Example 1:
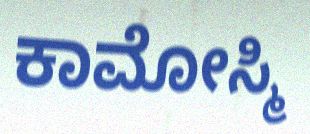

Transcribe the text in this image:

ಕಾಮೋಸ್ಮಿ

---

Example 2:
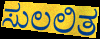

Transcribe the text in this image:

ಸುಲಲಿತ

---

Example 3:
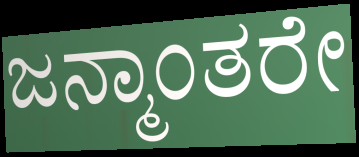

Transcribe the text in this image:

ಜನ್ಮಾಂತರೇ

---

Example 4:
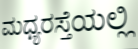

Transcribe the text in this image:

ಮಧ್ಯರಸ್ತೆಯಲ್ಲಿ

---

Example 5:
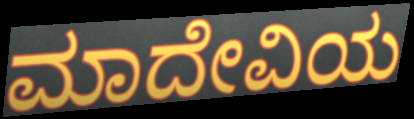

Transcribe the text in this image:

ಮಾದೇವಿಯ